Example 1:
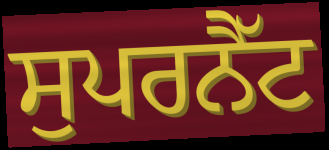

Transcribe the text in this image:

ਸੁਪਰਨੈੱਟ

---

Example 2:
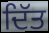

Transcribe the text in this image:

ਦਿੱਤ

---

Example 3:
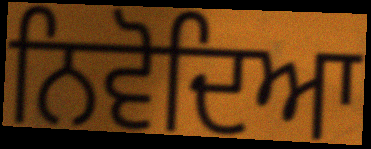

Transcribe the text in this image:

ਨਿਵੋਦਿਆ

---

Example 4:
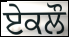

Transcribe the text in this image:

ਏਕਲੌ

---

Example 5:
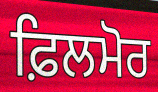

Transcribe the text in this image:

ਫ਼ਿਲਮੋਰ